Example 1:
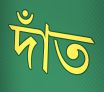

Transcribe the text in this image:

দাঁত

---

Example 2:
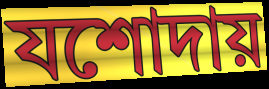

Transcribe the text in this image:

যশোদায়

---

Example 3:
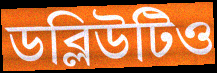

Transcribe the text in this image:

ডব্লিউটিও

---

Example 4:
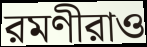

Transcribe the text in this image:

রমণীরাও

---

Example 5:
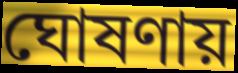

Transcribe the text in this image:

ঘোষণায়